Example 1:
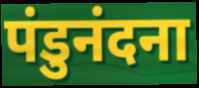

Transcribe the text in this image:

पंडुनंदना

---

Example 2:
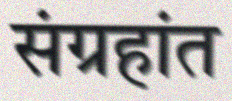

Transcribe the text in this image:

संग्रहांत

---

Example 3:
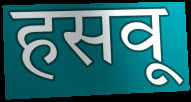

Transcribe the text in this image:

हसवू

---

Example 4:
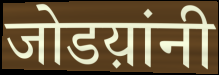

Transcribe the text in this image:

जोडय़ांनी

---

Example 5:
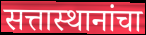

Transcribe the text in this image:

सत्तास्थानांचा